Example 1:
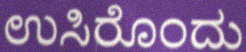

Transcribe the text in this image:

ಉಸಿರೊಂದು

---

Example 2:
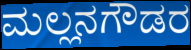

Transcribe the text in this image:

ಮಲ್ಲನಗೌಡರ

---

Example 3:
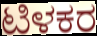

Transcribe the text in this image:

ಟಿಳಕರ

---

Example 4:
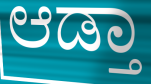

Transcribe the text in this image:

ಆಡ್ತಾ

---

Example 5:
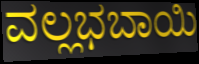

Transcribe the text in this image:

ವಲ್ಲಭಬಾಯಿ